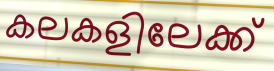
കലകളിലേക്ക്